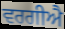
ਵਰਗੀਐ